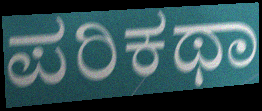
ಪರಿಕಥಾ